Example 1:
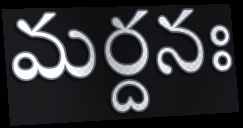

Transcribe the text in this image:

మర్దనః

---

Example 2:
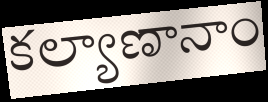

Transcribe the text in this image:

కల్యాణానాం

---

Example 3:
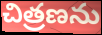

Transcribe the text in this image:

చిత్రణను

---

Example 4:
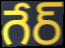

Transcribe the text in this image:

గేర్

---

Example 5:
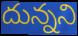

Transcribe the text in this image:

దున్నని